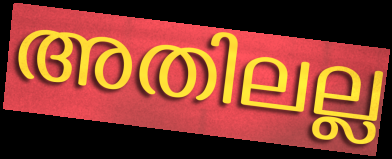
അതിലല്ല